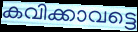
കവിക്കാവട്ടെ